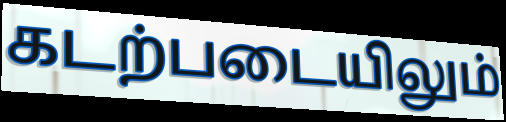
கடற்படையிலும்